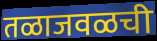
तळाजवळची